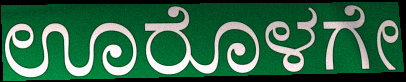
ಊರೊಳಗೇ